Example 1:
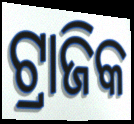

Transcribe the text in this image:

ଟ୍ରାଜିକ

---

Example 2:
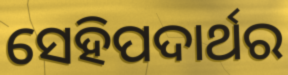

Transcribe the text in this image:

ସେହିପଦାର୍ଥର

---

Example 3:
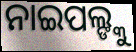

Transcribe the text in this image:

ନାଇପଲ୍ଙ୍କୁ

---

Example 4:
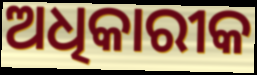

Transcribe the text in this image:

ଅଧିକାରୀକ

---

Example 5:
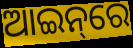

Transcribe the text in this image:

ଆଇନ୍‌ରେ